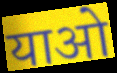
याओ